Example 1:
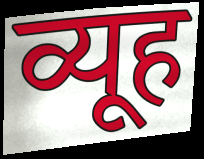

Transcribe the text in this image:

व्यूह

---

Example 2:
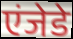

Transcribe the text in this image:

एंजेडे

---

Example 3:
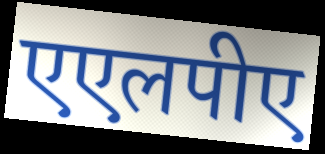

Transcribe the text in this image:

एएलपीए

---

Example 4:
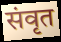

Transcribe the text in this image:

संवृत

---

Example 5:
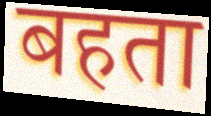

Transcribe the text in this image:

बहता